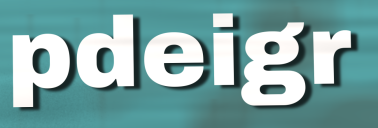
pdeigr